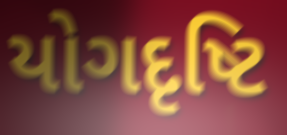
યોગદૃષ્ટિ